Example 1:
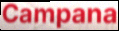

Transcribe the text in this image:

Campana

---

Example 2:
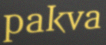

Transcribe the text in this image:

pakva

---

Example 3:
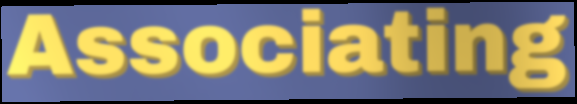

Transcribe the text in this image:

Associating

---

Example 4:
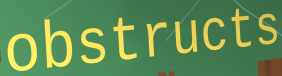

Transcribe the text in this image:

obstructs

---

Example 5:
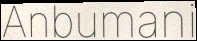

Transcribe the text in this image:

Anbumani